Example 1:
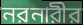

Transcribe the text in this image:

নরনারীর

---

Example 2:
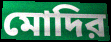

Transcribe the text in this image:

মোদির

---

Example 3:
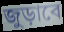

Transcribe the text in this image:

জুড়াবে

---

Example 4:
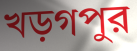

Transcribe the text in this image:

খড়গপুর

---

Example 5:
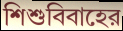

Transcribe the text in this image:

শিশুবিবাহের